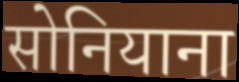
सोनियाना